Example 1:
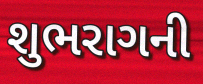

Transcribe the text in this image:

શુભરાગની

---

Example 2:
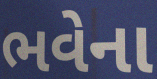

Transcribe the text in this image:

ભવેના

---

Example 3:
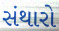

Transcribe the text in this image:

સંથારો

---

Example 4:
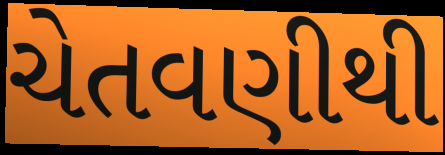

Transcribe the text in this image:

ચેતવણીથી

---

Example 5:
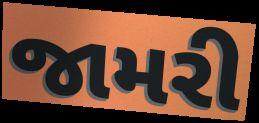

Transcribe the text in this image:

જામરી